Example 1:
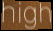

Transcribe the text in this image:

high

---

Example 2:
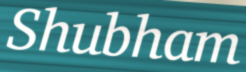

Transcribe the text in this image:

Shubham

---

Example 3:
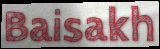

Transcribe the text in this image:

Baisakh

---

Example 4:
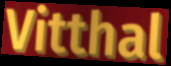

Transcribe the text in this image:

Vitthal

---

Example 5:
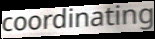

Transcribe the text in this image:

coordinating